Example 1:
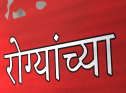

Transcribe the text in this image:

रोग्यांच्या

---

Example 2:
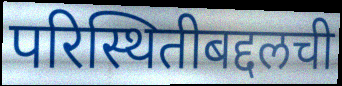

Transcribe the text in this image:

परिस्थितीबद्दलची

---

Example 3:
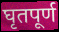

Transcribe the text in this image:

घृतपूर्ण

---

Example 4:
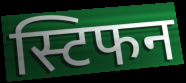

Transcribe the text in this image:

स्टिफन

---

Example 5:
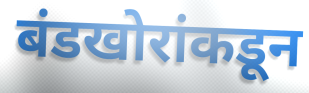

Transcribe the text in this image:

बंडखोरांकडून